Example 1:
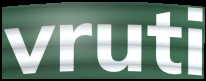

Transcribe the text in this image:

vruti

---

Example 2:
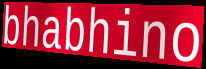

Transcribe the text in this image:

bhabhino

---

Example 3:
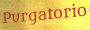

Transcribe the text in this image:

Purgatorio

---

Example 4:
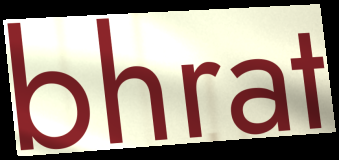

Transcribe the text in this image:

bhrat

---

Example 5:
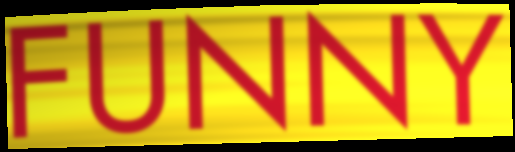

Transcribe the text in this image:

FUNNY